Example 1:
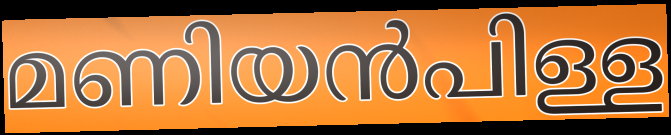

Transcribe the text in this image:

മണിയൻപിള്ള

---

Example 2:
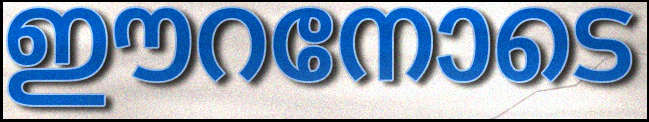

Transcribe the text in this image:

ഈറനോടെ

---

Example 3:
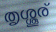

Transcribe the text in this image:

തൃശ്ശൂര്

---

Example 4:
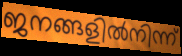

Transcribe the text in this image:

ജനങ്ങളിൽനിന്ന്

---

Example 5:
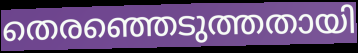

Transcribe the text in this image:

തെരഞ്ഞെടുത്തതായി